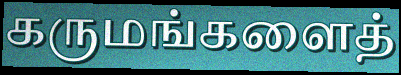
கருமங்களைத்